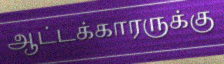
ஆட்டக்காரருக்கு